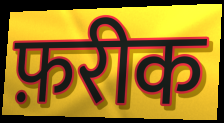
फ़रीक